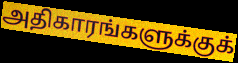
அதிகாரங்களுக்குக்